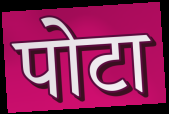
पोटा